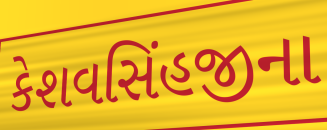
કેશવસિંહજીના